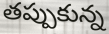
తప్పుకున్న